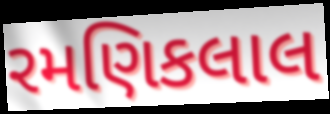
રમણિકલાલ